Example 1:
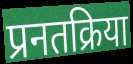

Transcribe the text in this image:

प्रनतक्रिया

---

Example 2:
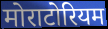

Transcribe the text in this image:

मोराटोरियम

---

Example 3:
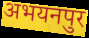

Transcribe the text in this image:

अभयनपुर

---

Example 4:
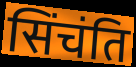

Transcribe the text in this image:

सिंचंति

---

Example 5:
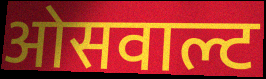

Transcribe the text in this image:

ओसवाल्ट